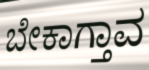
ಬೇಕಾಗ್ತಾವ